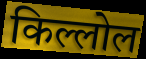
किल्लोल